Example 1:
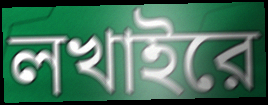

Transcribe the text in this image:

লখাইরে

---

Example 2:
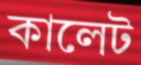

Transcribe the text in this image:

কালেট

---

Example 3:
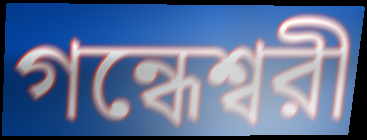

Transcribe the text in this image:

গন্ধেশ্বরী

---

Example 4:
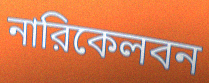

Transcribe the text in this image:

নারিকেলবন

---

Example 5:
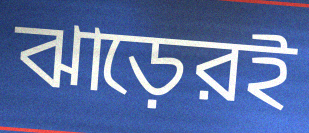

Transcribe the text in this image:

ঝাড়েরই